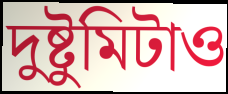
দুষ্টুমিটাও